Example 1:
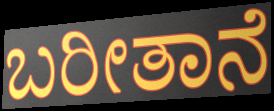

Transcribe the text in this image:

ಬರೀತಾನೆ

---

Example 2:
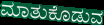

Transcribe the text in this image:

ಮಾತುಕೊಡುವ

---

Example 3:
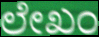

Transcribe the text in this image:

ಲೇಖಂ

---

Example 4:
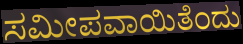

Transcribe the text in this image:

ಸಮೀಪವಾಯಿತೆಂದು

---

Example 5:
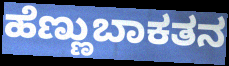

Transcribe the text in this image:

ಹೆಣ್ಣುಬಾಕತನ